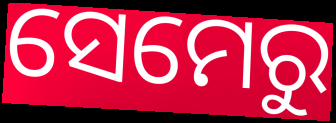
ସେମେରୁ